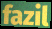
fazil